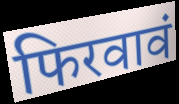
फिरवावं